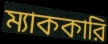
ম্যাককারি